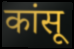
कांसू